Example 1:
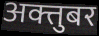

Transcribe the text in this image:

अक्तुबर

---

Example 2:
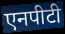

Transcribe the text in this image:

एनपीटी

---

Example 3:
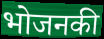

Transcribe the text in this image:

भोजनकी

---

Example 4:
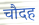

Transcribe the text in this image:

चौदह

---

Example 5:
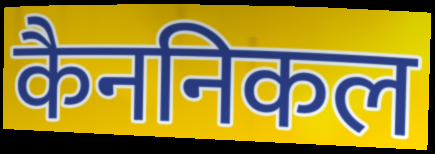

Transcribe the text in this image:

कैननिकल